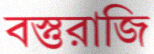
বস্তুরাজি